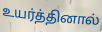
உயர்த்தினால்